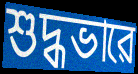
শুদ্ধভাৱে